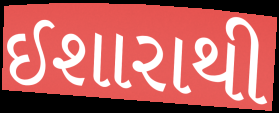
ઈશારાથી